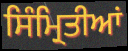
ਸਿੰਮ੍ਰਿਤੀਆਂ